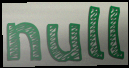
null